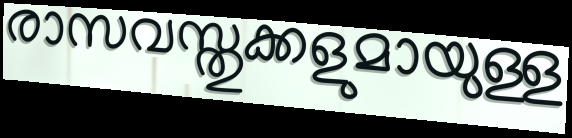
രാസവസ്തുക്കളുമായുള്ള